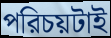
পরিচয়টাই